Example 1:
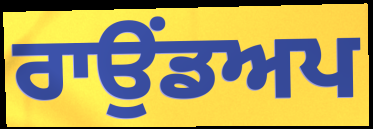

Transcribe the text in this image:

ਰਾਉਂਡਅਪ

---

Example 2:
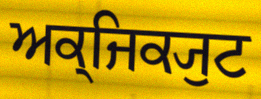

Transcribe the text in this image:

ਅਕ੍ਜਿਕ੍ਯੁਟ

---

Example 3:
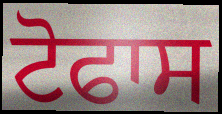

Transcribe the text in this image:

ਟੋਫਾਸ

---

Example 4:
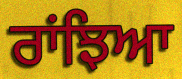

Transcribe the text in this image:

ਰਾਂਝਿਆ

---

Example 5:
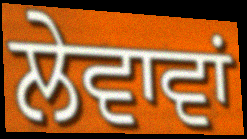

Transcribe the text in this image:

ਲੇਵਾਵਾਂ